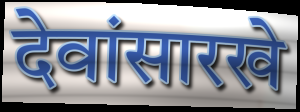
देवांसारखे